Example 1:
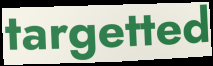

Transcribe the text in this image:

targetted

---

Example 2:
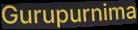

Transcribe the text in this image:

Gurupurnima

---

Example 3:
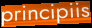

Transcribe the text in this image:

principiis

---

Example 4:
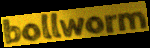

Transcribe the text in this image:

bollworm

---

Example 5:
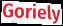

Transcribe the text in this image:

Goriely